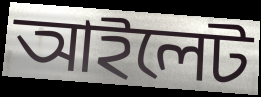
আইলেট